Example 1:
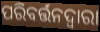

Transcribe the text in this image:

ପରିବର୍ତ୍ତନଦ୍ୱାରା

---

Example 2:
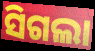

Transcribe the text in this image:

ସିଗଲା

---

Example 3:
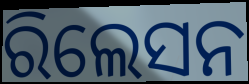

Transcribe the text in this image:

ରିଲେସନ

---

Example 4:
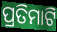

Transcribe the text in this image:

ପ୍ରତିମାଟି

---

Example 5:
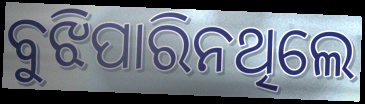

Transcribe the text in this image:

ବୁଝିପାରିନଥିଲେ